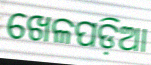
ଖେଳପଡ଼ିଆ